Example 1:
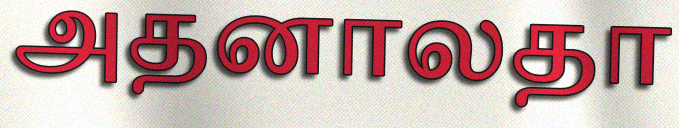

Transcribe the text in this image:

அதனாலதா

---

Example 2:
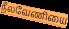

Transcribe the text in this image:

நீலவேணியை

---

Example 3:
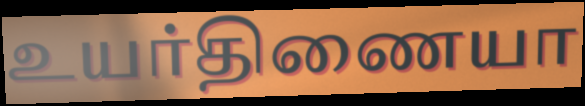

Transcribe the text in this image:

உயர்திணையா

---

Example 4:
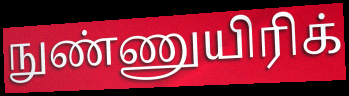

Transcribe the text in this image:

நுண்ணுயிரிக்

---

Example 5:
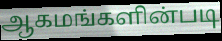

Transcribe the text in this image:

ஆகமங்களின்படி